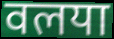
वलया